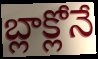
బ్లాక్లోనే